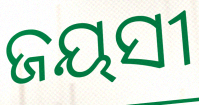
ଜୟସୀ